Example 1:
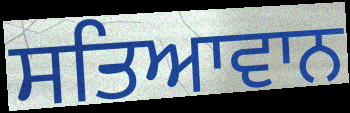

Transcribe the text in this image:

ਸਤਿਆਵਾਨ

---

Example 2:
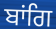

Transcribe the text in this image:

ਬਾਂਗਿ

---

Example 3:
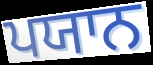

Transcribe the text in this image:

ਪਯਾਨ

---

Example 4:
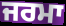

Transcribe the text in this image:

ਜਰਮਾ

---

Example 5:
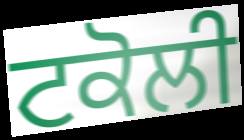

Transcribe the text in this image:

ਟਕੋਲੀ